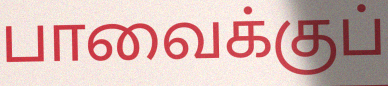
பாவைக்குப்